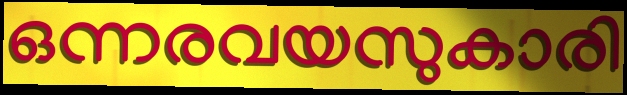
ഒന്നരവയസുകാരി